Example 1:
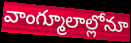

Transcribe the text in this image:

వాంగ్మూలాల్లోనూ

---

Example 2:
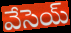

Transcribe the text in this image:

వేసెయ్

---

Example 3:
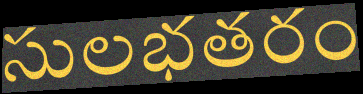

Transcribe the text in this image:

సులభతరం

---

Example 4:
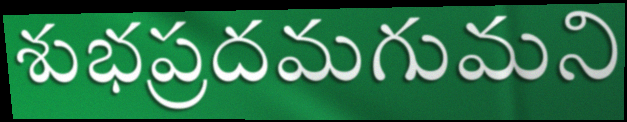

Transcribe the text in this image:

శుభప్రదమగుమని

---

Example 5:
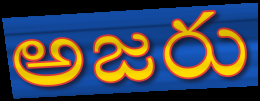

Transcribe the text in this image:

అజరు